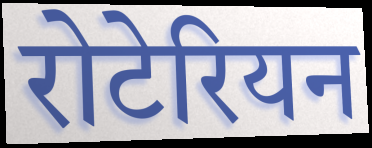
रोटेरियन